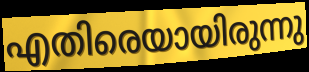
എതിരെയായിരുന്നു